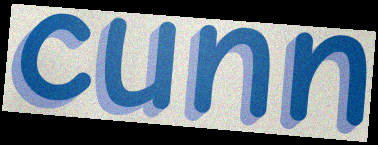
cunn